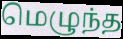
மெழுந்த